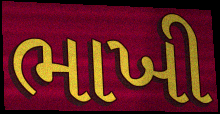
ભાખી